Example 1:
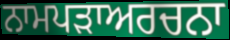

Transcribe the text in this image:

ਨਾਮਪੜਾਅਰਚਨਾ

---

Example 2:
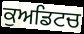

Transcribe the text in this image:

ਕੁਅਡਿਟਚ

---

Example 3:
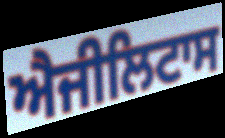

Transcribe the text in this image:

ਐਜੀਲਿਟਾਸ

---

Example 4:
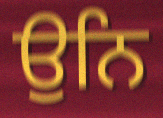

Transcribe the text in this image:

ਉਨਿ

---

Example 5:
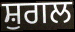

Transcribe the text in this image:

ਸ਼ੁਗਲ